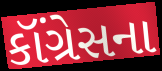
કૉંગ્રેસના